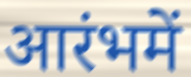
आरंभमें